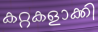
കറ്റകളാക്കി